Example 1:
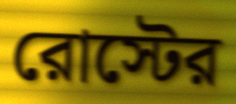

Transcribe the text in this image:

রোস্টের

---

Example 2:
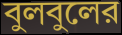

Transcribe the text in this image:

বুলবুলের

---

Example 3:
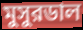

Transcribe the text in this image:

মুসুরডাল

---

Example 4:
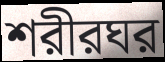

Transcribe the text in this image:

শরীরঘর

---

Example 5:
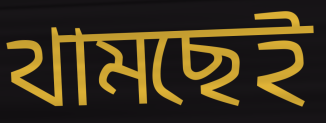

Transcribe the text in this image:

থামছেই